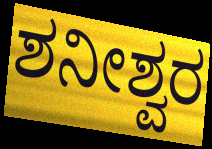
ಶನೀಶ್ವರ